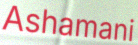
Ashamani